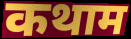
कथाम